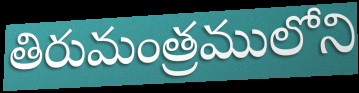
తిరుమంత్రములోని